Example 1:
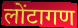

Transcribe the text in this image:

लोंटागण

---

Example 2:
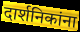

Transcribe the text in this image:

दार्शनिकांना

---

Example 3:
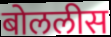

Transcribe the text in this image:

बोललीस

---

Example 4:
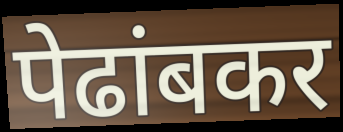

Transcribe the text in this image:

पेढांबकर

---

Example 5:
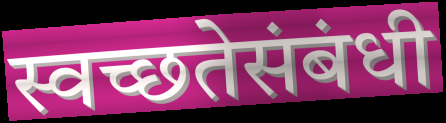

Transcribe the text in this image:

स्वच्छतेसंबंधी